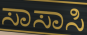
ಸಾಸಾಸಿ